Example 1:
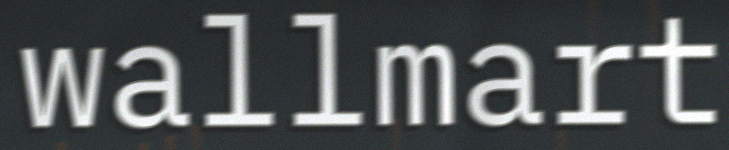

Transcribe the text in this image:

wallmart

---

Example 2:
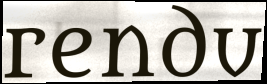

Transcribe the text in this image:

rendu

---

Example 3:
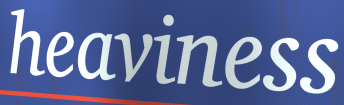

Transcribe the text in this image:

heaviness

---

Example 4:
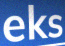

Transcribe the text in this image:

eks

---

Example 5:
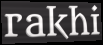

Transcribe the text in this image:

rakhi